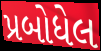
પ્રબોધેલ